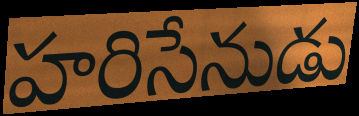
హరిసేనుడు